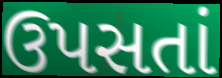
ઉપસતાં